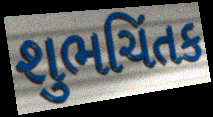
શુભચિંતક